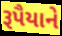
રૂપૈયાને